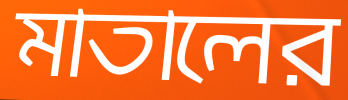
মাতালের